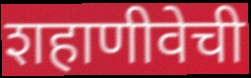
शहाणीवेची